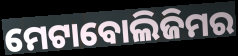
ମେଟାବୋଲିଜିମର